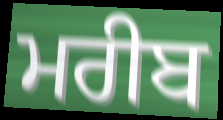
ਮਰੀਬ